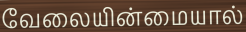
வேலையின்மையால்